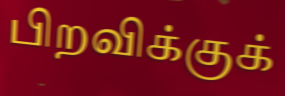
பிறவிக்குக்